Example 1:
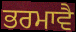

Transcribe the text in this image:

ਭਰਮਾਵੈ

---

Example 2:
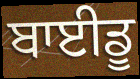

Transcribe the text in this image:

ਬਾਈਡੂ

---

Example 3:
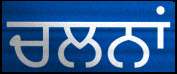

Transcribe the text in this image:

ਚਲਨਾਂ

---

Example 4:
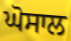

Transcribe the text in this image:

ਘੋਸਾਲ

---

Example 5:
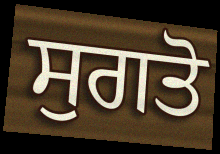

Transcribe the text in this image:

ਸੁਗਤੋ